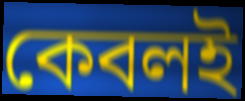
কেবলই